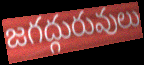
జగద్గురువులు